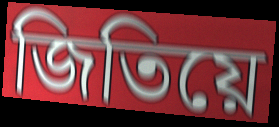
জিতিয়ে